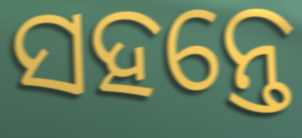
ସହନ୍ତେ